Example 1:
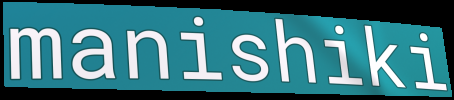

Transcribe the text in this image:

manishiki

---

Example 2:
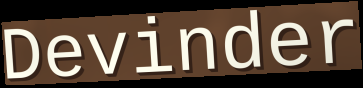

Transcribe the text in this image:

Devinder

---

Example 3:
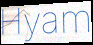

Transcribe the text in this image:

Hyam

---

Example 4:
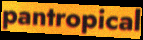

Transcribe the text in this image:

pantropical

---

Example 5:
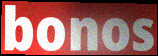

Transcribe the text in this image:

bonos